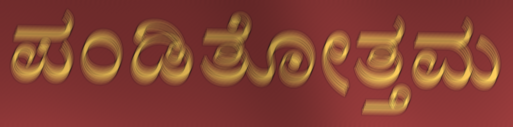
ಪಂಡಿತೋತ್ತಮ